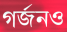
গর্জনও